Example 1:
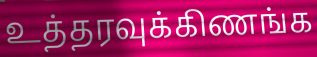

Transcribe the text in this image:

உத்தரவுக்கிணங்க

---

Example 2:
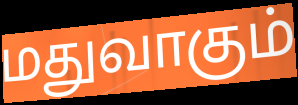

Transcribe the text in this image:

மதுவாகும்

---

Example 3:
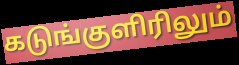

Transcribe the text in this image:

கடுங்குளிரிலும்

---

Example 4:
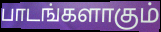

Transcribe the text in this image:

பாடங்களாகும்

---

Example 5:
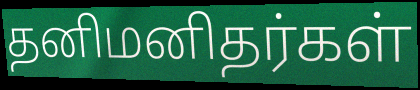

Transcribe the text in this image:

தனிமனிதர்கள்